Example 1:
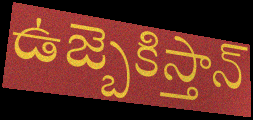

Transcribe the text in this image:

ఉజ్బెకిస్తాన్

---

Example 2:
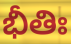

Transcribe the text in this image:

భీతిః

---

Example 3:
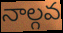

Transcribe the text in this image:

నాల్గవ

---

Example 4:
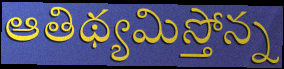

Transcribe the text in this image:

ఆతిథ్యమిస్తోన్న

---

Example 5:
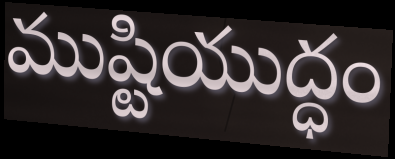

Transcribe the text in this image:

ముష్టియుద్ధం